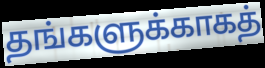
தங்களுக்காகத்